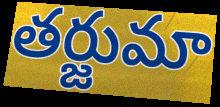
తర్జుమా